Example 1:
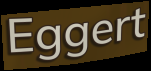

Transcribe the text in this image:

Eggert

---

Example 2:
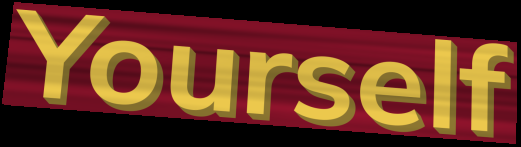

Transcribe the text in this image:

Yourself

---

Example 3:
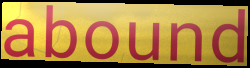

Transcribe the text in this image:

abound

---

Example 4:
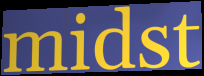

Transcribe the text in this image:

midst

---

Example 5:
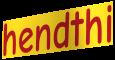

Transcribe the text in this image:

hendthi